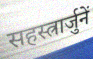
सहस्त्रार्जुनें